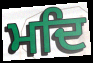
ਮਦਿ